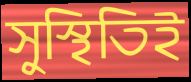
সুস্থিতিই